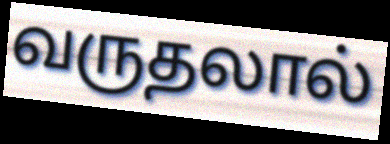
வருதலால்